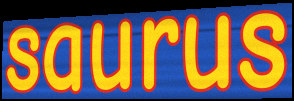
saurus